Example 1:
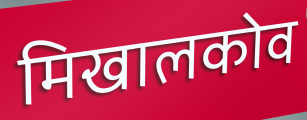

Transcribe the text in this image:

मिखालकोव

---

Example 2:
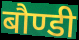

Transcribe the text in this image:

बौण्डी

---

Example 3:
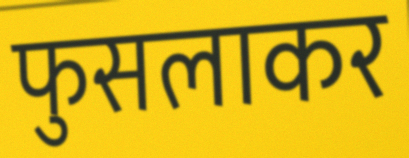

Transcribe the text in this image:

फुसलाकर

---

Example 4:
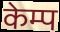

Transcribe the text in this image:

केम्प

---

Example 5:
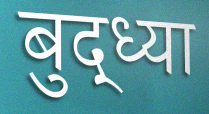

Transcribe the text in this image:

बुद्ध्या